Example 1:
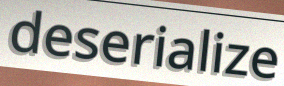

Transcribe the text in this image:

deserialize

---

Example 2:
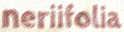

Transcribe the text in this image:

neriifolia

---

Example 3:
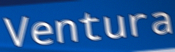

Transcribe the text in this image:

Ventura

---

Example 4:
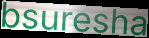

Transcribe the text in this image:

bsuresha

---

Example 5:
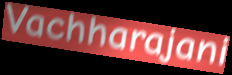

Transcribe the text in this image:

Vachharajani